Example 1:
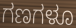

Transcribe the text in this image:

ಗಣಗಳೂ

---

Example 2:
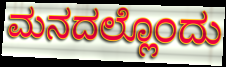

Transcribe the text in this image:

ಮನದಲ್ಲೊಂದು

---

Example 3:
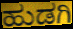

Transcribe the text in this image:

ಹುಡಗಿ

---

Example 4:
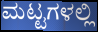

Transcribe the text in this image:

ಮಟ್ಟಗಳಲ್ಲಿ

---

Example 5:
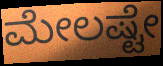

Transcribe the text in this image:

ಮೇಲಷ್ಟೇ